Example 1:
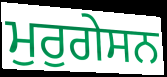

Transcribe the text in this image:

ਮੁਰੁਗੇਸਨ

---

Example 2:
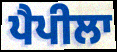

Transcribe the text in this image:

ਪੈਪੀਲਾ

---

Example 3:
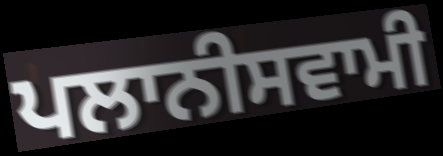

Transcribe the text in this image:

ਪਲਾਨੀਸਵਾਮੀ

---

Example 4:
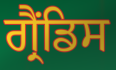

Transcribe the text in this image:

ਗ੍ਰੈਂਡਿਸ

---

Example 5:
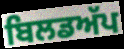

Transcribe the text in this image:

ਬਿਲਡਅੱਪ